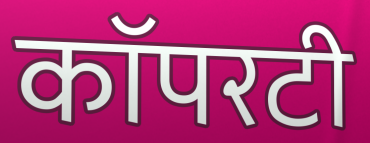
कॉपरटी